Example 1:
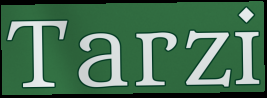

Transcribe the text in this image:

Tarzi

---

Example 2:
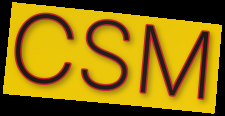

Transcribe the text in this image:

CSM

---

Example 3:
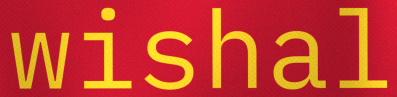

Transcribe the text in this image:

wishal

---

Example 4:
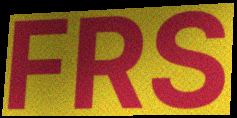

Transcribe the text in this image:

FRS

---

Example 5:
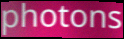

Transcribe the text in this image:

photons